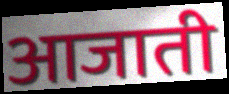
आजाती